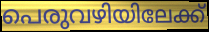
പെരുവഴിയിലേക്ക്